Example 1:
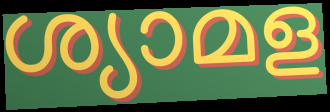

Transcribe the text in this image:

ശ്യാമള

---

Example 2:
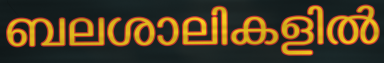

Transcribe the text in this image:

ബലശാലികളിൽ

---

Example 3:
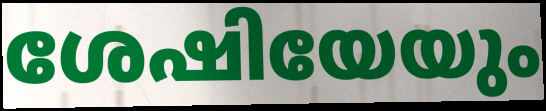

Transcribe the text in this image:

ശേഷിയേയും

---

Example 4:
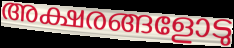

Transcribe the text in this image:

അക്ഷരങ്ങളോടു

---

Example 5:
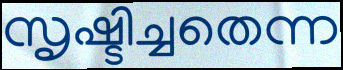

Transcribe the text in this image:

സൃഷ്ടിച്ചതെന്ന